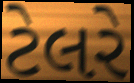
ટેલરે